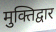
मुक्तिद्वार